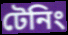
টেনিং